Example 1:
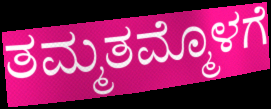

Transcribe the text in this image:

ತಮ್ಮತಮ್ಮೊಳಗೆ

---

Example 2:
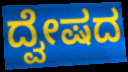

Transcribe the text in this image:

ದ್ವೇಷದ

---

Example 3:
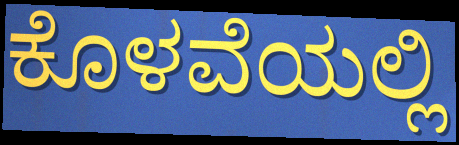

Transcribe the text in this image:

ಕೊಳವೆಯಲ್ಲಿ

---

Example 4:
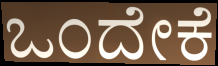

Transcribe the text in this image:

ಒಂದೇಕೆ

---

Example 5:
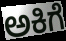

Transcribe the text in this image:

ಅಕಿಗೆ